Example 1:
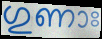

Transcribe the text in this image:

ഗുണാഃ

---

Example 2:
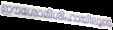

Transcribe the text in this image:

ഈശോമിശിഹായിലൂടെ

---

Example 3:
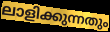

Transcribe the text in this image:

ലാളിക്കുന്നതും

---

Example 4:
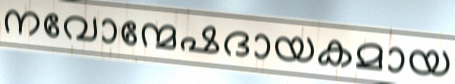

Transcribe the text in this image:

നവോന്മേഷദായകമായ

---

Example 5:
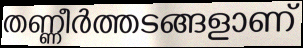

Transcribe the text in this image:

തണ്ണീർത്തടങ്ങളാണ്